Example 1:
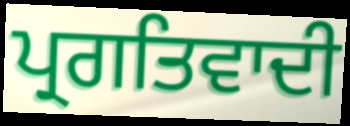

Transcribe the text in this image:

ਪ੍ਰਗਤਿਵਾਦੀ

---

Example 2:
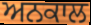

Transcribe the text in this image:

ਅਨਕਾਲ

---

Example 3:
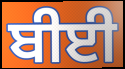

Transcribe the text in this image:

ਬੀਈ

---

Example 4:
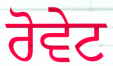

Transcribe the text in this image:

ਰੋਵੇਟ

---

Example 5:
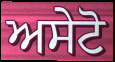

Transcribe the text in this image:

ਅਸੇਟੋ